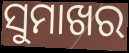
ସୁମାଖର